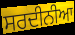
ਸਰਦੀਨੀਆ